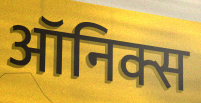
ऑनिक्स